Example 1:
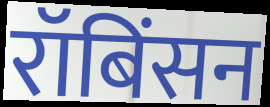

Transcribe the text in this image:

रॉबिंसन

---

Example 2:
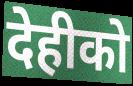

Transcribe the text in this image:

देहीको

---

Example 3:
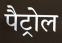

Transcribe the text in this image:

पैट्रोल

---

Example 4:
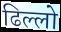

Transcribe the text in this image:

ढिल्लो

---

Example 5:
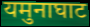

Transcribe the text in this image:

यमुनाघाट